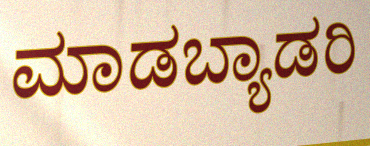
ಮಾಡಬ್ಯಾಡರಿ